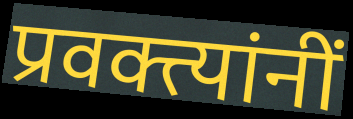
प्रवक्त्यांनीं